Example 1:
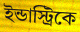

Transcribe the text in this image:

ইন্ডাস্ট্রিকে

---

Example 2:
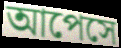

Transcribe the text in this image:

আপেসে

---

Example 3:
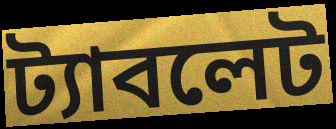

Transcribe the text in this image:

ট্যাবলেট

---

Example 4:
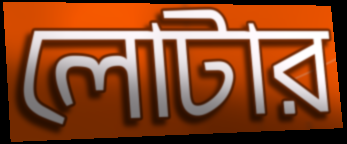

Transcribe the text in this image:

লোটার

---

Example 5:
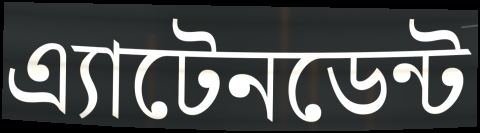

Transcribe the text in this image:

এ্যাটেনডেন্ট